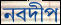
নবদীপ